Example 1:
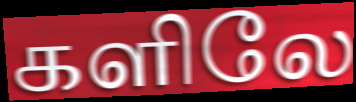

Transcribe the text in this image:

களிலே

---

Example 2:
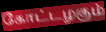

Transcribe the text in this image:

கோட்டழகும்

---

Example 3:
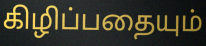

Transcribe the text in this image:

கிழிப்பதையும்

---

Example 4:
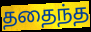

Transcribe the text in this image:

ததைந்த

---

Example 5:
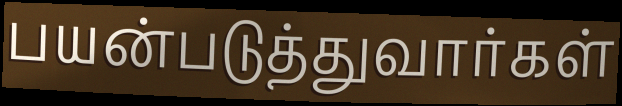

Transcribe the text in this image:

பயன்படுத்துவார்கள்